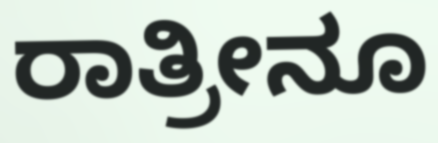
ರಾತ್ರೀನೂ